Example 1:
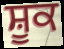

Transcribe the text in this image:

ਸ਼ੂਕ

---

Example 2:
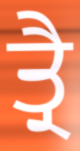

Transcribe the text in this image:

ਤ੍ਰੈ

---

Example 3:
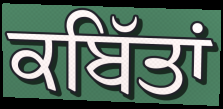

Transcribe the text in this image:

ਕਬਿੱਤਾਂ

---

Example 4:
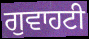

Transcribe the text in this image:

ਗੁਵਾਹਟੀ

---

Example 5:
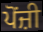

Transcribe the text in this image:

ਪੋਂਜ਼ੀ